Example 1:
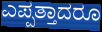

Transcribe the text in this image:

ಎಪ್ಪತ್ತಾದರೂ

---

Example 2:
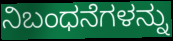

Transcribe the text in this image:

ನಿಬಂಧನೆಗಳನ್ನು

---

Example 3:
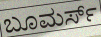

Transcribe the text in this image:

ಬೂಮರ್ಸ್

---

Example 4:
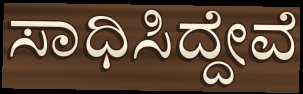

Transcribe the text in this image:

ಸಾಧಿಸಿದ್ದೇವೆ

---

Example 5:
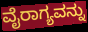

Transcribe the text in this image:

ವೈರಾಗ್ಯವನ್ನು